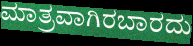
ಮಾತ್ರವಾಗಿರಬಾರದು